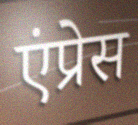
एंप्रेस